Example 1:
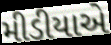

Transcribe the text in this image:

મીડીયાએ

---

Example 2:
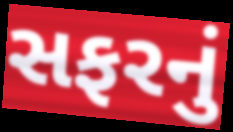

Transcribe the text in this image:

સફરનું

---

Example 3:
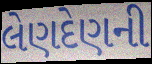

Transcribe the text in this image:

લેણદેણની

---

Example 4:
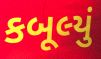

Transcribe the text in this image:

કબૂલ્યું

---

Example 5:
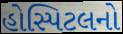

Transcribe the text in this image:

હોસ્પિટલનો